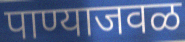
पाण्याजवळ